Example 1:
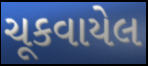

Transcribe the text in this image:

ચૂકવાયેલ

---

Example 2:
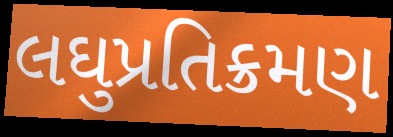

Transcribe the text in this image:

લઘુપ્રતિક્રમણ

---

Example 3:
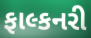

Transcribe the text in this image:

ફાલ્કનરી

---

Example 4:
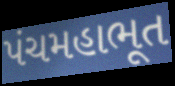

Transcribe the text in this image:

પંચમહાભૂત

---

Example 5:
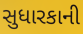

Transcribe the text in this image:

સુધારકાની